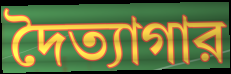
দৈত্যাগার